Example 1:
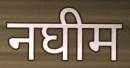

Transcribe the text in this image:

नघीम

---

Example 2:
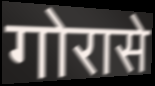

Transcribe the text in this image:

गोरासे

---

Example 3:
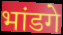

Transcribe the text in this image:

भांडगे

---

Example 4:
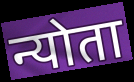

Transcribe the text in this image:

न्योता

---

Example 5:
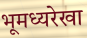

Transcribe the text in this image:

भूमध्यरेखा